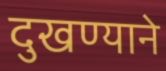
दुखण्याने